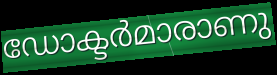
ഡോക്ടർമാരാണു